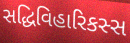
સદ્ધિવિહારિકસ્સ